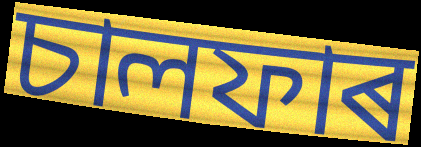
চালফাৰ